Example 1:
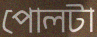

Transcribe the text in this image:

পোলটা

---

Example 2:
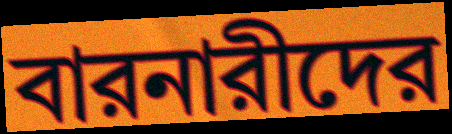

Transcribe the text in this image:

বারনারীদের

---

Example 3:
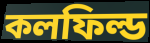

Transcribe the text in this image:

কলফিল্ড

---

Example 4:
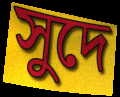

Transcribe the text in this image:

সুদে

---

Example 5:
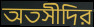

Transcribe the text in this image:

অতসীদির